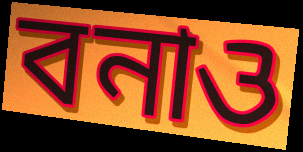
বনাও